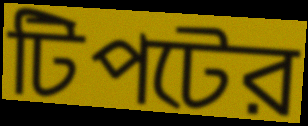
টিপটের